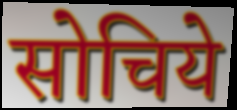
सोचिये